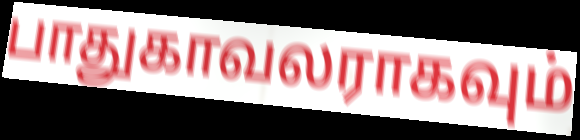
பாதுகாவலராகவும்